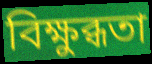
বিক্ষুব্ধতা